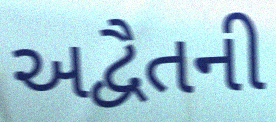
અદ્વૈતની